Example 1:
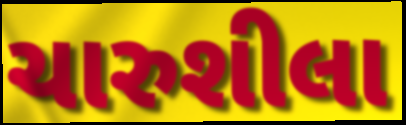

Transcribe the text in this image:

ચારુશીલા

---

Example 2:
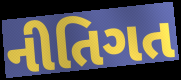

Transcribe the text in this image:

નીતિગત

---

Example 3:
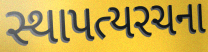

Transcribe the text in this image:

સ્થાપત્યરચના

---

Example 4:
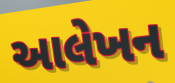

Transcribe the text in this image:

આલેખન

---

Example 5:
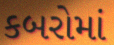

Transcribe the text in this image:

કબરોમાં